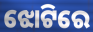
ଝୋଟିରେ